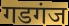
गडगंज